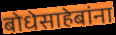
बोधेसाहेबांना